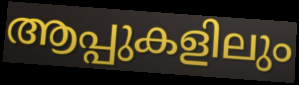
ആപ്പുകളിലും